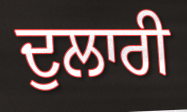
ਦੁਲਾਰੀ